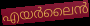
എയർലൈൻ